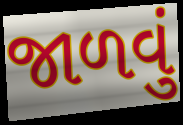
જાળવું